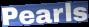
Pearls